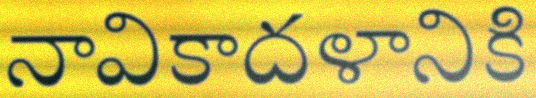
నావికాదళానికి